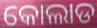
କୋଲାଡ